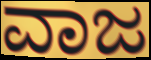
ವಾಜ